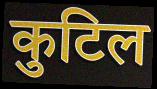
कुटिल